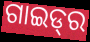
ଗାଇଡ୍‌ର